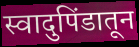
स्वादुपिंडातून